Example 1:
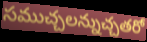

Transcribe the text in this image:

సముచ్చలన్నుచ్చతరో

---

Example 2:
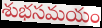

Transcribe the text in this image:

శుభసమయం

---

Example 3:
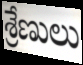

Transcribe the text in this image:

శ్రేణులు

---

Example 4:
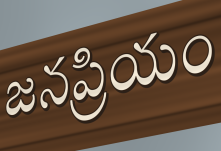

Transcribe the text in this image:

జనప్రియం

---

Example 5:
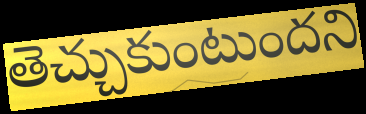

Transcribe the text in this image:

తెచ్చుకుంటుందని